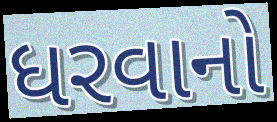
ધરવાનો